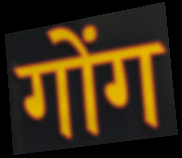
गोंग